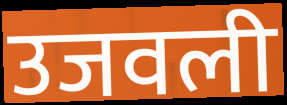
उजवली